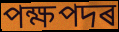
পক্ষপদৰ